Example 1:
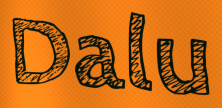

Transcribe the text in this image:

Dalu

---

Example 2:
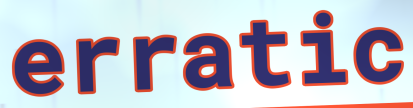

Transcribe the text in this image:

erratic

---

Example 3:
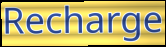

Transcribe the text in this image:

Recharge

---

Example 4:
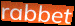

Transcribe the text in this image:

rabbet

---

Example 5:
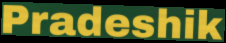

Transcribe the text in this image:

Pradeshik